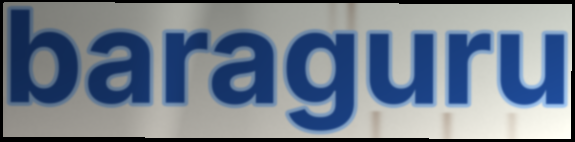
baraguru